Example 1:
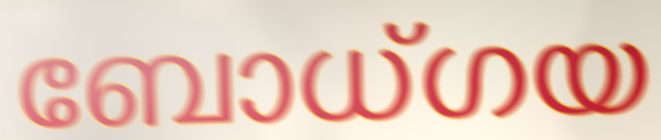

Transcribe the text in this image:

ബോധ്ഗയ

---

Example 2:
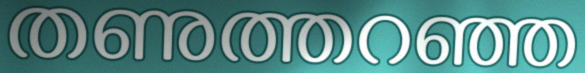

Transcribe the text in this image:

തണുത്തറഞ്ഞ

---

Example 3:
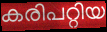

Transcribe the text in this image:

കരിപറ്റിയ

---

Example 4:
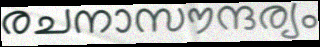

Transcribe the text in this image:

രചനാസൗന്ദര്യം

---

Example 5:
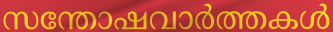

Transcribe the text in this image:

സന്തോഷവാർത്തകൾ